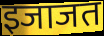
इजाजत